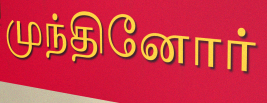
முந்தினோர்